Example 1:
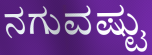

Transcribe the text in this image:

ನಗುವಷ್ಟು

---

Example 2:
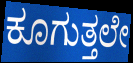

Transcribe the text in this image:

ಕೂಗುತ್ತಲೇ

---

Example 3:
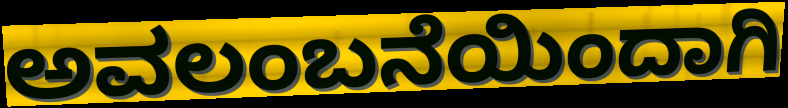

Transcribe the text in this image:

ಅವಲಂಬನೆಯಿಂದಾಗಿ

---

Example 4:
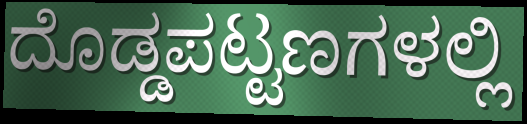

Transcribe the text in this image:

ದೊಡ್ಡಪಟ್ಟಣಗಳಲ್ಲಿ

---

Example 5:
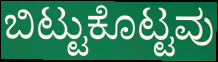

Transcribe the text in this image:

ಬಿಟ್ಟುಕೊಟ್ಟವು